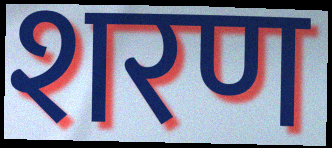
शरण